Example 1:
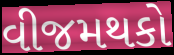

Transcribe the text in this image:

વીજમથકો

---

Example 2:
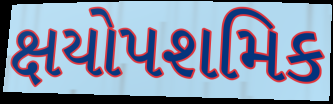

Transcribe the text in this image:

ક્ષયોપશમિક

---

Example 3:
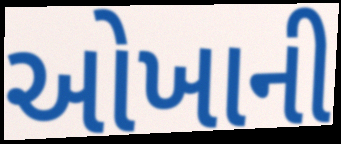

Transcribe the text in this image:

ઓખાની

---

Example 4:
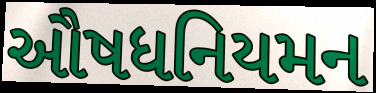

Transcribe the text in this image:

ઔષધનિયમન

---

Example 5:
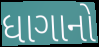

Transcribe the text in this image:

ધાગાનો